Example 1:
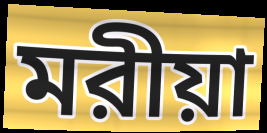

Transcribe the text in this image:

মরীয়া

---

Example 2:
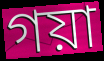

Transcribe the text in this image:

গয়া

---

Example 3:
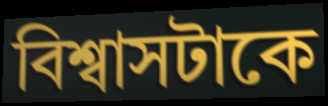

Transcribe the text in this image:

বিশ্বাসটাকে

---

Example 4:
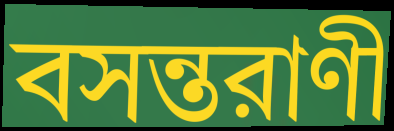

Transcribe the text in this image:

বসন্তরাণী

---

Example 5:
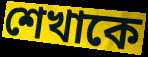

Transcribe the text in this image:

শেখাকে